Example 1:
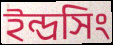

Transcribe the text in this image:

ইন্দ্রসিং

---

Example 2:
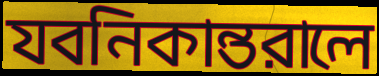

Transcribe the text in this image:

যবনিকান্তরালে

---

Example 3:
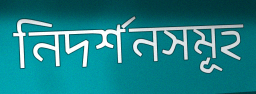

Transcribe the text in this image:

নিদর্শনসমূহ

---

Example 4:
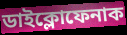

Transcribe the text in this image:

ডাইক্লোফেনাক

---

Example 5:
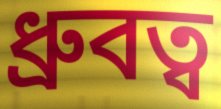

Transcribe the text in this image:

ধ্রুবত্ব